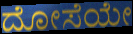
ದೋಸೆಯೇ